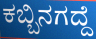
ಕಬ್ಬಿನಗದ್ದೆ